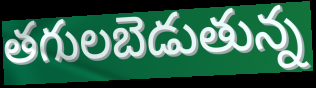
తగులబెడుతున్న